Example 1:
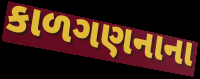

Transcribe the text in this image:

કાળગણનાના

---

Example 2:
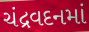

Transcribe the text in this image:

ચંદ્રવદનમાં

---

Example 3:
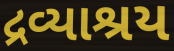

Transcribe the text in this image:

દ્રવ્યાશ્રય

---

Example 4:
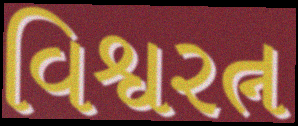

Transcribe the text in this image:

વિશ્વરત્ન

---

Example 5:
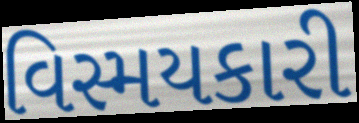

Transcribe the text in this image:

વિસ્મયકારી